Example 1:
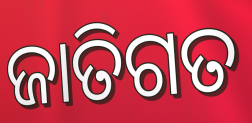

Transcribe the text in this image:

ଜାତିଗତ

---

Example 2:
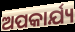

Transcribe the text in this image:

ଅପକାର୍ଯ୍ୟ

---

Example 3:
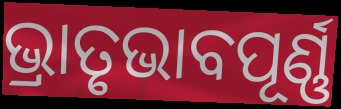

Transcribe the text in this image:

ଭ୍ରାତୃଭାବପୂର୍ଣ୍ଣ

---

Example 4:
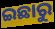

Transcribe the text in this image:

ଇଛାରୁ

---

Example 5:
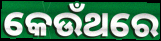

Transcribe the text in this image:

କେଉଁଥରେ